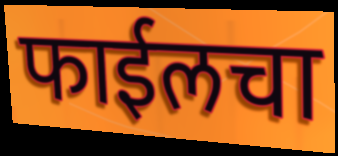
फाईलचा